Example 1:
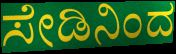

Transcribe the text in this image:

ಸೇಡಿನಿಂದ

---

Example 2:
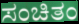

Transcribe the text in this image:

ಸಂಚಿತಂ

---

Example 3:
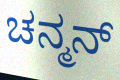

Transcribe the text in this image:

ಚನ್ಮನ್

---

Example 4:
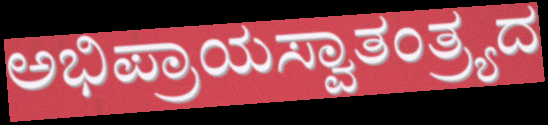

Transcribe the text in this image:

ಅಭಿಪ್ರಾಯಸ್ವಾತಂತ್ರ್ಯದ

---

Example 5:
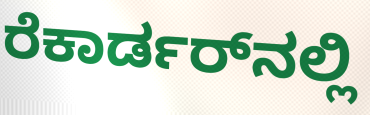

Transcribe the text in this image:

ರೆಕಾರ್ಡರ್‌ನಲ್ಲಿ